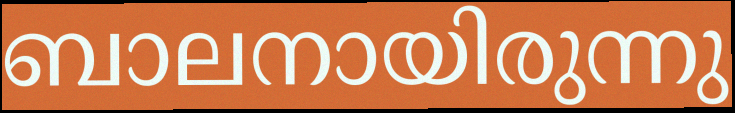
ബാലനായിരുന്നു